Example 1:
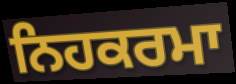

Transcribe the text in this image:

ਨਿਹਕਰਮਾ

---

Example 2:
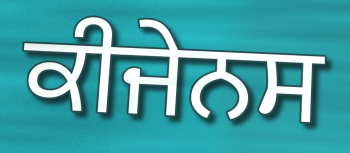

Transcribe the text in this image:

ਕੀਜੇਨਸ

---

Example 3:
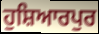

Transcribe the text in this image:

ਹੁਸ਼ਿਆਰਪੁਰ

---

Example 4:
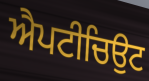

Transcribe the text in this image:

ਐਪਟੀਚਿਉਟ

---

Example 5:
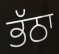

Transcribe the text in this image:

ਭੱਠਾ